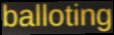
balloting